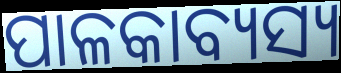
ପାଳକାବ୍ୟସ୍ୟ